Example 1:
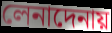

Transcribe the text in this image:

লেনাদেনায়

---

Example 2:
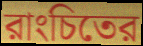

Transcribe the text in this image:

রাংচিতের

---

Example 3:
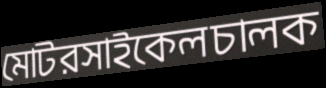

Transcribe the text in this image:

মোটরসাইকেলচালক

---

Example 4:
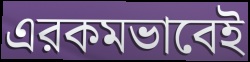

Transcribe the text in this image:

এরকমভাবেই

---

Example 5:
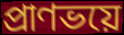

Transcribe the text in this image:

প্রাণভয়ে